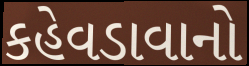
કહેવડાવાનો